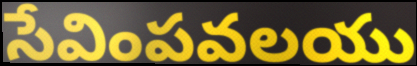
సేవింపవలయు